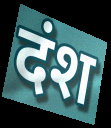
दंश